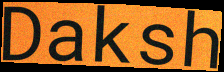
Daksh